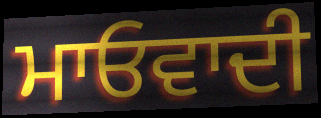
ਮਾਓਵਾਦੀ